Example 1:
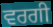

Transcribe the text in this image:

ਵਰਗੀ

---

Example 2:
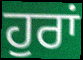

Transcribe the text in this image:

ਹੁਰਾਂ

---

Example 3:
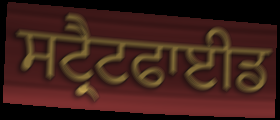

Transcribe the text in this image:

ਸਟ੍ਰੈਟਫਾਈਡ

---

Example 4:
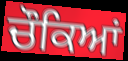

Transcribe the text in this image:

ਚੌਕਿਆਂ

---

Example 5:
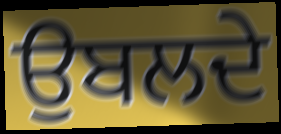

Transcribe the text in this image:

ਉਬਲਦੇ